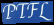
PTFL